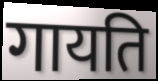
गायति